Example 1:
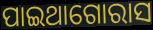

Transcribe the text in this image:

ପାଇଥାଗୋରାସ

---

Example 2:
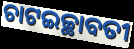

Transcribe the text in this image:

ଚାଟଇଚ୍ଛାବତୀ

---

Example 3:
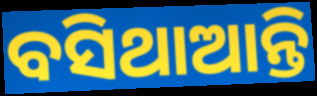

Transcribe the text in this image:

ବସିଥାଆନ୍ତି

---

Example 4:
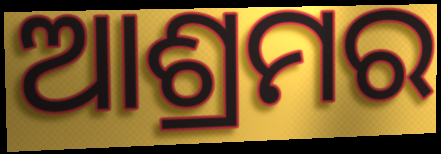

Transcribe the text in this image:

ଆଶ୍ରମର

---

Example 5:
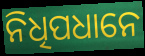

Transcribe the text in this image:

ନିଧିପଧାନେ